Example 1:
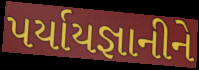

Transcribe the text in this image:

પર્યાયજ્ઞાનીને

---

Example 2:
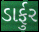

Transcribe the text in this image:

ડાર્ફુર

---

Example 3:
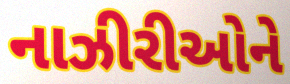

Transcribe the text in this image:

નાઝીરીઓને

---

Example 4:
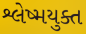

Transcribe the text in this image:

શ્લેષ્મયુક્ત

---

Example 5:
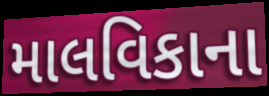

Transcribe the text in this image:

માલવિકાના